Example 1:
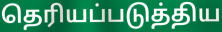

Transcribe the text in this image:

தெரியப்படுத்திய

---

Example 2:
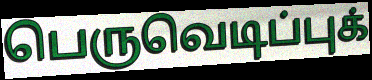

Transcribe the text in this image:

பெருவெடிப்புக்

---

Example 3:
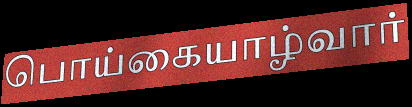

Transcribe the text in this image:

பொய்கையாழ்வார்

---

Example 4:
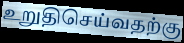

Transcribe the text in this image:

உறுதிசெய்வதற்கு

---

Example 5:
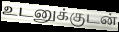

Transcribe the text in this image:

உடனுக்குடன்